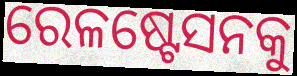
ରେଳଷ୍ଟେସନକୁ